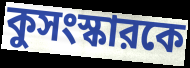
কুসংস্কারকে